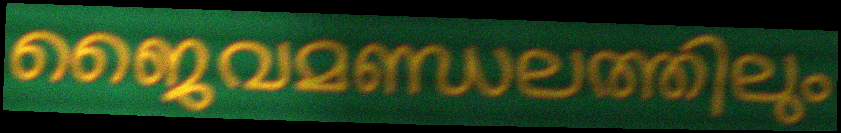
ജൈവമണ്ഡലത്തിലും